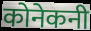
कोनेकनी